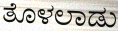
ತೊಳಲಾಡು